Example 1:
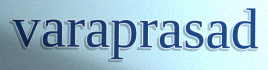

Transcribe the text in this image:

varaprasad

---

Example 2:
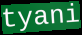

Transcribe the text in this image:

tyani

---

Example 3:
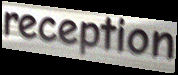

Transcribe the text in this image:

reception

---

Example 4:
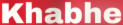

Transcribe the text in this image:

Khabhe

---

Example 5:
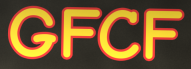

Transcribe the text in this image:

GFCF